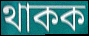
থাকক